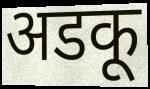
अडकू